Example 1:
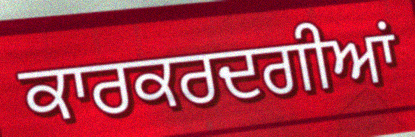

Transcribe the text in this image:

ਕਾਰਕਰਦਗੀਆਂ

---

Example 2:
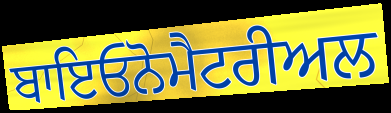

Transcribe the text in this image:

ਬਾਇਓਨੋਮੈਟਰੀਅਲ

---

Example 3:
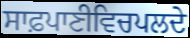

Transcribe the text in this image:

ਸਾਫ਼ਪਾਣੀਵਿਚਪਲਦੇ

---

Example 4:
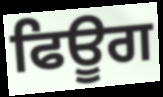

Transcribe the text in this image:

ਫਿਊਗ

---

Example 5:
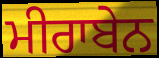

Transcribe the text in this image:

ਮੀਰਾਬੇਨ